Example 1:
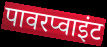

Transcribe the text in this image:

पावरप्वाइंट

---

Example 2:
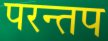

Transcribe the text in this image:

परन्तप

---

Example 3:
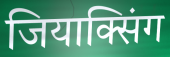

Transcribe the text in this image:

जियाक्सिंग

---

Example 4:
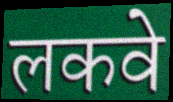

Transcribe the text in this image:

लकवे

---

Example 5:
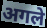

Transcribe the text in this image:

अगले